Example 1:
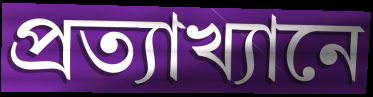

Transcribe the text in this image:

প্রত্যাখ্যানে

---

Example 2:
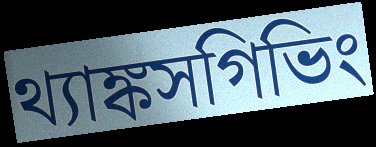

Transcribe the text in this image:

থ্যাঙ্কসগিভিং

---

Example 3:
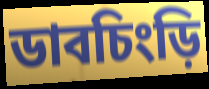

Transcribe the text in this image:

ডাবচিংড়ি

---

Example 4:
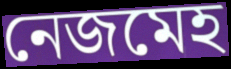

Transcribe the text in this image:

নেজমেহ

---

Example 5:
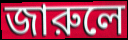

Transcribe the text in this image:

জারুলে